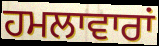
ਹਮਲਾਵਾਰਾਂ